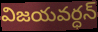
విజయవర్ధన్